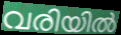
വരിയിൽ